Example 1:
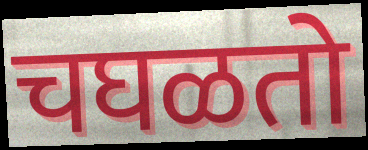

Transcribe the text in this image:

चघळतो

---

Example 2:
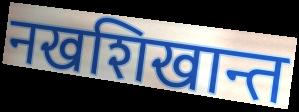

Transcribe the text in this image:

नखशिखान्त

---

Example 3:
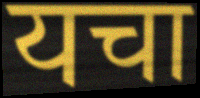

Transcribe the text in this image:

यचा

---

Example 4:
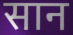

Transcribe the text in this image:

सान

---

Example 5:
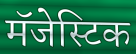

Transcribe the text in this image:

मॅजेस्टिक